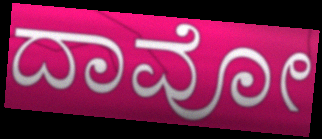
ದಾವೋ